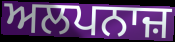
ਅਲਪਨਾਜ਼